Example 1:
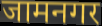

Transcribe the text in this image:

जामनगर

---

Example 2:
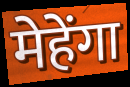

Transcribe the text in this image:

मेहेंगा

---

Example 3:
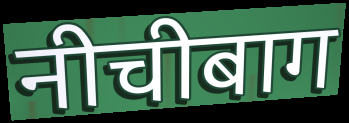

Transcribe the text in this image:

नीचीबाग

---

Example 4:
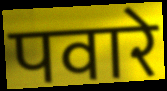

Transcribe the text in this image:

पवारे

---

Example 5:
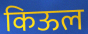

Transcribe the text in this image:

किऊल